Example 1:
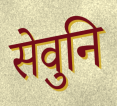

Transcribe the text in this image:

सेवुनि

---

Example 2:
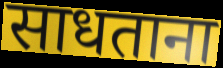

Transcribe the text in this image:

साधताना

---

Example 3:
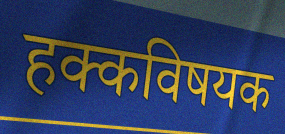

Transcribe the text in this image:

हक्कविषयक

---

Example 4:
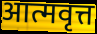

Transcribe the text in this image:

आत्मवृत्त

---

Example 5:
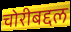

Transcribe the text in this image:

चोरीबद्दल